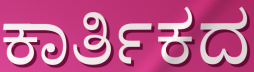
ಕಾರ್ತಿಕದ